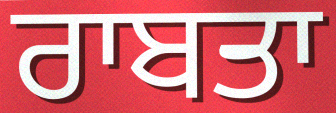
ਰਾਬਤਾ